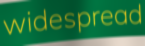
widespread